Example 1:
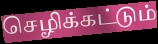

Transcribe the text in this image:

செழிக்கட்டும்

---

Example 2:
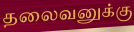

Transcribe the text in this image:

தலைவனுக்கு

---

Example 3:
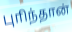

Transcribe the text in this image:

புரிந்தான்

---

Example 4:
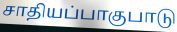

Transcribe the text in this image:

சாதியப்பாகுபாடு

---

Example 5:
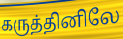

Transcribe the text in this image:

கருத்தினிலே